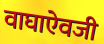
वाघाऐवजी